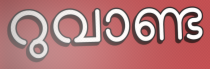
റുവാണ്ട